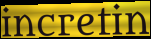
incretin